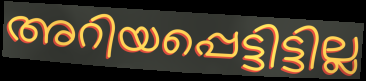
അറിയപ്പെട്ടിട്ടില്ല